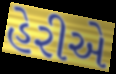
હેરીએ